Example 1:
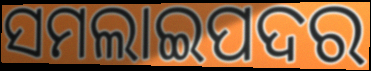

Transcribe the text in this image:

ସମଲାଇପଦର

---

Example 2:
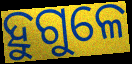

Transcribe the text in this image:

ହୁଗୁଳେ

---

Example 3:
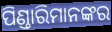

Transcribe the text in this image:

ପିଣ୍ଡାରିମାନଙ୍କର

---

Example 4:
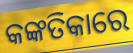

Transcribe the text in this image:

କଙ୍କତିକାରେ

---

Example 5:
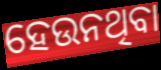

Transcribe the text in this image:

ହେଉନଥିବା